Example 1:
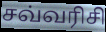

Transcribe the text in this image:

சவ்வரிசி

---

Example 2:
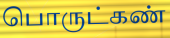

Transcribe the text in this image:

பொருட்கண்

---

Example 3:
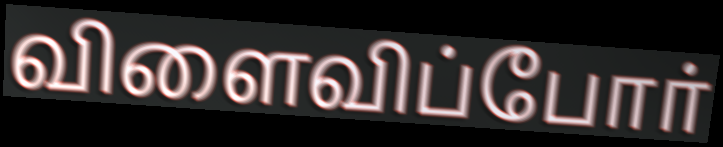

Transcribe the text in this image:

விளைவிப்போர்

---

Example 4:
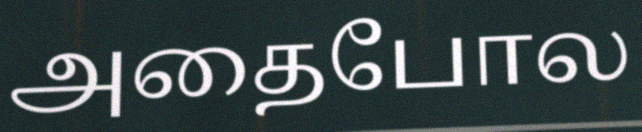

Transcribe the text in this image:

அதைபோல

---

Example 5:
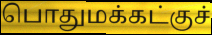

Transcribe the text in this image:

பொதுமக்கட்குச்